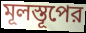
মূলস্তূপের